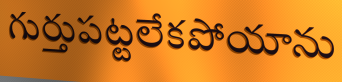
గుర్తుపట్టలేకపోయాను